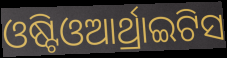
ଓଷ୍ଟିଓଆର୍ଥ୍ରାଇଟିସ